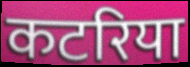
कटरिया